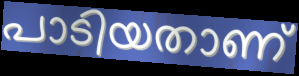
പാടിയതാണ്